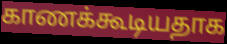
காணக்கூடியதாக